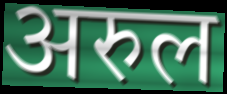
अरुल